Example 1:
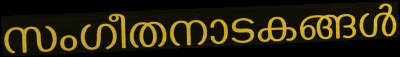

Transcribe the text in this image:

സംഗീതനാടകങ്ങൾ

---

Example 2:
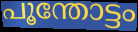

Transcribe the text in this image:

പൂന്തോട്ടം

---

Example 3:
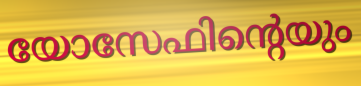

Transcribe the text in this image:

യോസേഫിന്റെയും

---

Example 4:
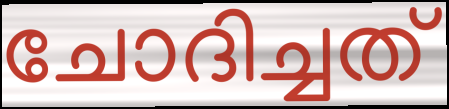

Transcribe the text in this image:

ചോദിച്ചത്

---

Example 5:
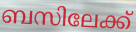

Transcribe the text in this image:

ബസിലേക്ക്